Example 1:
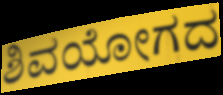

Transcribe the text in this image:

ಶಿವಯೋಗದ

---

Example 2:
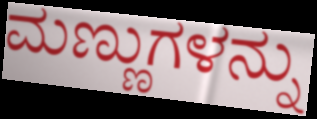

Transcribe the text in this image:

ಮಣ್ಣುಗಳನ್ನು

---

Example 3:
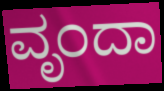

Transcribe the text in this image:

ವೃಂದಾ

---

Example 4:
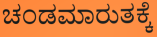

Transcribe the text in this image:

ಚಂಡಮಾರುತಕ್ಕೆ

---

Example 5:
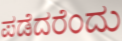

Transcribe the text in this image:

ಪಡೆದರೆಂದು